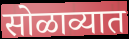
सोळाव्यात